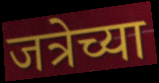
जत्रेच्या